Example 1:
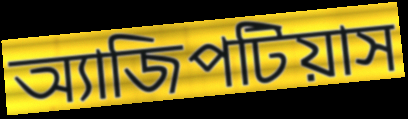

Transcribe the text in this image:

অ্যাজিপটিয়াস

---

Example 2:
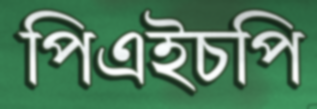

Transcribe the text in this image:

পিএইচপি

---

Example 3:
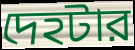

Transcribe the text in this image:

দেহটার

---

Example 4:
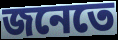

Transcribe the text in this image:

জনেতে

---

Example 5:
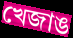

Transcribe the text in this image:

খেজাঙ